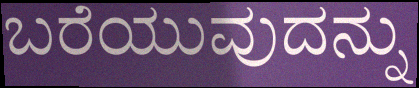
ಬರೆಯುವುದನ್ನು